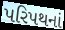
પરિપથનાં